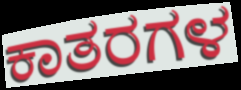
ಕಾತರಗಳ